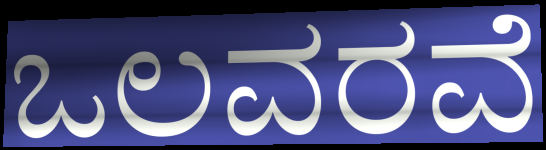
ಒಲವರವೆ